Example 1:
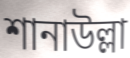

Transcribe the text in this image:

শানাউল্লা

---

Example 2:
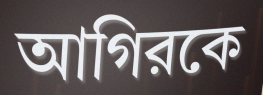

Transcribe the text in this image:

আগিরকে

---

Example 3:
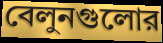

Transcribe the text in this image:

বেলুনগুলোর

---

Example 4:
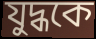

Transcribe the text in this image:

যুদ্ধকে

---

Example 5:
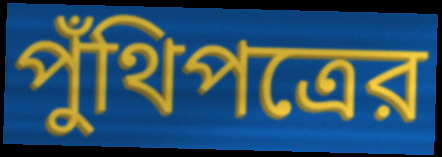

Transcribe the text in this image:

পুঁথিপত্রের